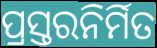
ପ୍ରସ୍ତରନିର୍ମିତ